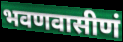
भवणवासीणं